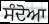
ਸੰਦੋਆ